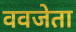
ववजेता